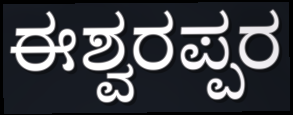
ಈಶ್ವರಪ್ಪರ